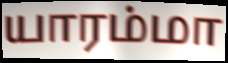
யாரம்மா